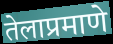
तेलाप्रमाणे